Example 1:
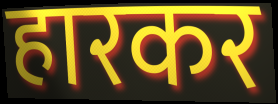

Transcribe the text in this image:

हारकर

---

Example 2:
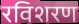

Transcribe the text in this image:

रविशरण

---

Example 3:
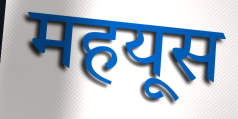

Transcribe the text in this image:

महयूस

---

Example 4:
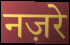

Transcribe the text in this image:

नज़रे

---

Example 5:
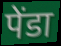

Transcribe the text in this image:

पेंडा